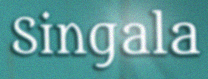
Singala